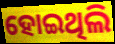
ହୋଇଥିଲି